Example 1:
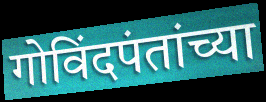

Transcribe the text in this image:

गोविंदपंतांच्या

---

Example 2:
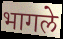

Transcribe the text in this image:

भागले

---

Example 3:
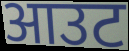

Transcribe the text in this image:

आउट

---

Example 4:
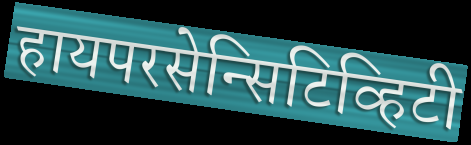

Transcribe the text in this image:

हायपरसेन्सिटिव्हिटी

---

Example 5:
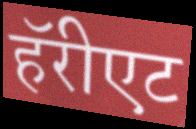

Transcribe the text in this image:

हॅरीएट